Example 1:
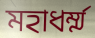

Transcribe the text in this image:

মহাধর্ম্ম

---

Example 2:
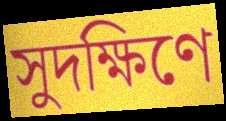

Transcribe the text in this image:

সুদক্ষিণে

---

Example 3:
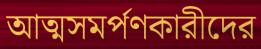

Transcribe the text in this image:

আত্মসমর্পণকারীদের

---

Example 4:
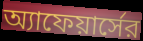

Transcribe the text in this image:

অ্যাফেয়ার্সের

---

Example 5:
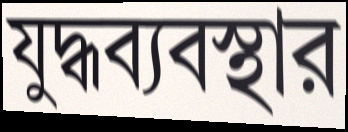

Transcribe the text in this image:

যুদ্ধব্যবস্থার